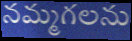
నమ్మగలను